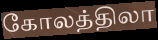
கோலத்திலா